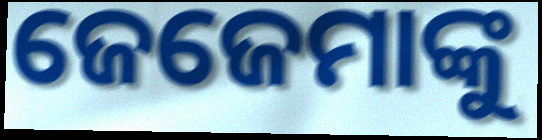
ଜେଜେମାଙ୍କୁ